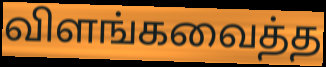
விளங்கவைத்த